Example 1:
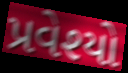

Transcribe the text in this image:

પ્રવેશ્યો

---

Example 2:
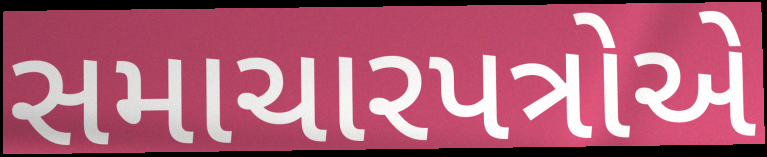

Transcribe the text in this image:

સમાચારપત્રોએ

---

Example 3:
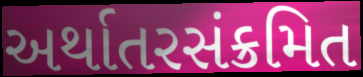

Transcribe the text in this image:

અર્થાતરસંક્રમિત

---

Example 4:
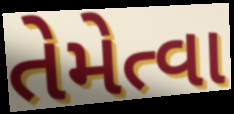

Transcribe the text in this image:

તેમેત્વા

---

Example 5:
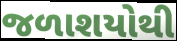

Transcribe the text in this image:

જળાશયોથી